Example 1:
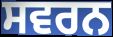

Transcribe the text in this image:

ਸਵਰਨ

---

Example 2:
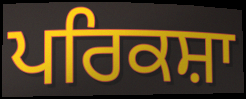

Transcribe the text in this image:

ਪਰਿਕਸ਼ਾ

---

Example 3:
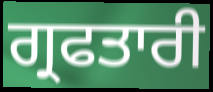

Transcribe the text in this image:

ਗ੍ਰਫਤਾਰੀ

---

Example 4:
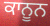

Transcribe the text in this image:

ਕਾਨੂਨ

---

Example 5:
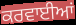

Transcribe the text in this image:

ਕਰਵਾਈਆਂ